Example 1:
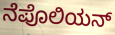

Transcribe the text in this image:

ನೆಪೊಲಿಯನ್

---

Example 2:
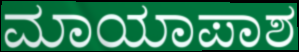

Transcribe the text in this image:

ಮಾಯಾಪಾಶ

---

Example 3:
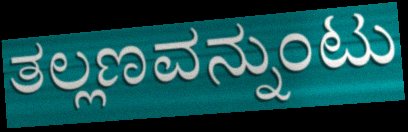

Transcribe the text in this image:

ತಲ್ಲಣವನ್ನುಂಟು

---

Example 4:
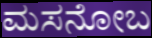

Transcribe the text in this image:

ಮಸನೋಬ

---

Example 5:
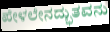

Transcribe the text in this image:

ಪೇಳಲೇನದ್ಭುತವನು